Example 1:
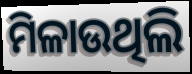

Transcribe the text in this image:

ମିଳାଉଥିଲି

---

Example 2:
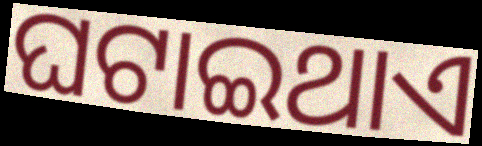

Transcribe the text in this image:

ଘଟାଇଥାଏ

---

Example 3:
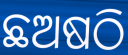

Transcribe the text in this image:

ଛଅଷଠି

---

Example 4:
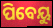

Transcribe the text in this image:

ପିବେୟୁ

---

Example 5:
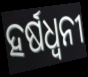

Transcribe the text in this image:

ହର୍ଷଧ୍ୱନୀ